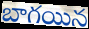
బాగయిన